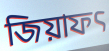
জিয়াফৎ